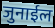
जुनाईल